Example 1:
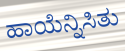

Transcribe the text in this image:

ಹಾಯೆನ್ನಿಸಿತು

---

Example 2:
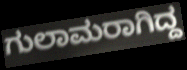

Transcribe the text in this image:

ಗುಲಾಮರಾಗಿದ್ದ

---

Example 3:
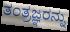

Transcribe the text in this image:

ತಂತ್ರಜ್ಞರನ್ನು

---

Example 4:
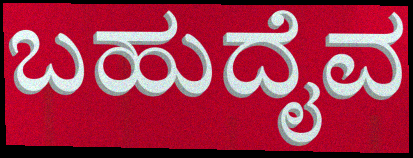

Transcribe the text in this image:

ಬಹುದೈವ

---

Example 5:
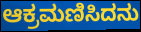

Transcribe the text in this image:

ಆಕ್ರಮಣಿಸಿದನು